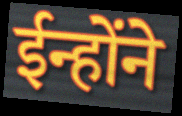
ईन्होंने